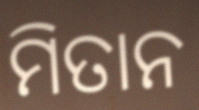
ମିତାନ